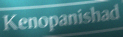
Kenopanishad